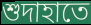
শুদাহাতে